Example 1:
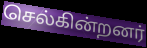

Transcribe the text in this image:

செல்கின்றனர்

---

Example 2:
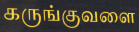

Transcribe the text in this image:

கருங்குவளை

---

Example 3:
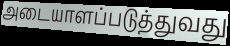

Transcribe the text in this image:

அடையாளப்படுத்துவது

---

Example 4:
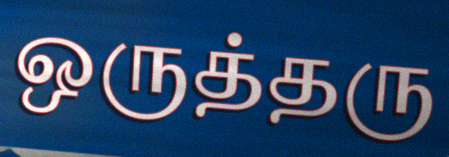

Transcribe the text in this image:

ஒருத்தரு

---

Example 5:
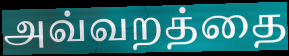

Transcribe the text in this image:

அவ்வறத்தை